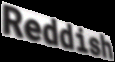
Reddish